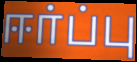
ஈர்ப்பு